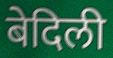
बेदिली